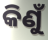
କିଣୁଁ